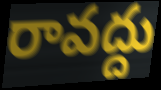
రావద్దు